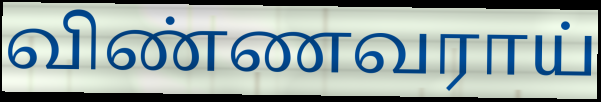
விண்ணவராய்